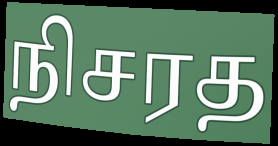
நிசரத